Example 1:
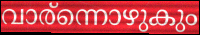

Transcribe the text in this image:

വാര്ന്നൊഴുകും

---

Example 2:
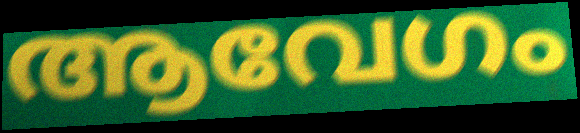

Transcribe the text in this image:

ആവേഗം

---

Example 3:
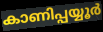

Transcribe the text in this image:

കാണിപ്പയ്യൂർ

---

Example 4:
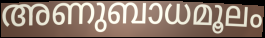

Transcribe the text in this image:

അണുബാധമൂലം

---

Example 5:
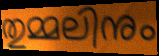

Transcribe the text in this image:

തുമ്മലിനും